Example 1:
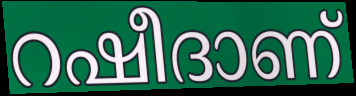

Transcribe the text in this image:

റഷീദാണ്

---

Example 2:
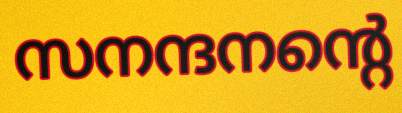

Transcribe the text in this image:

സനന്ദനന്റെ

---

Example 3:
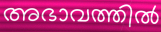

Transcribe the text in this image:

അഭാവത്തിൽ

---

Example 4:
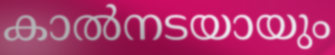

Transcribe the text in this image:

കാൽനടയായും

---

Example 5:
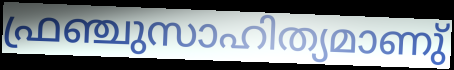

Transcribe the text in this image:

ഫ്രഞ്ചുസാഹിത്യമാണു്